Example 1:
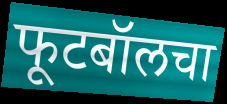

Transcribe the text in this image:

फूटबॉलचा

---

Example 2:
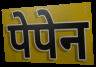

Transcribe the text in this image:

पेपेन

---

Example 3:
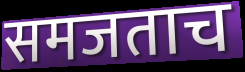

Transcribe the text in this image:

समजताच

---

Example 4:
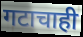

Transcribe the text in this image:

गटाचाही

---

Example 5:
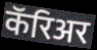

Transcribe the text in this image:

कॅरिअर